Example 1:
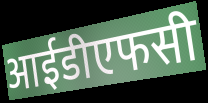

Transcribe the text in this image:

आईडीएफसी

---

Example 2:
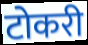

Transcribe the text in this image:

टोकरी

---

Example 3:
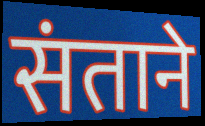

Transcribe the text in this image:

संताने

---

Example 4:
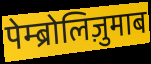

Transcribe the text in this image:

पेम्ब्रोलिज़ुमाब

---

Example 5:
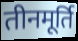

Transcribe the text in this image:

तीनमूर्ति